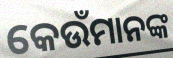
କେଉଁମାନଙ୍କ